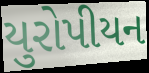
યુરોપીયન